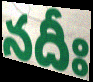
నదీః